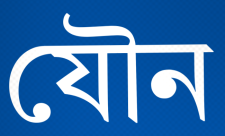
যৌন